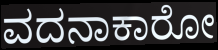
ವದನಾಕಾರೋ